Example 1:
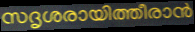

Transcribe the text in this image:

സദൃശരായിത്തീരാൻ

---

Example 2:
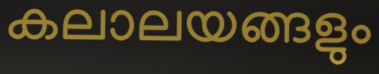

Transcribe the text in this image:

കലാലയങ്ങളും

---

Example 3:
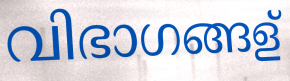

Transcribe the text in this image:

വിഭാഗങ്ങള്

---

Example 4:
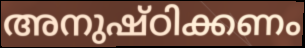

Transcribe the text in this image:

അനുഷ്ഠിക്കണം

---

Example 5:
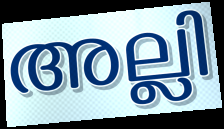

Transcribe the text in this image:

അല്ലി